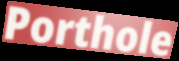
Porthole